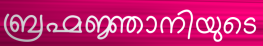
ബ്രഹ്മജ്ഞാനിയുടെ